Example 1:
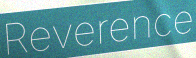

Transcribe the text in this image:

Reverence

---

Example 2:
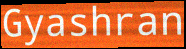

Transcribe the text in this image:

Gyashran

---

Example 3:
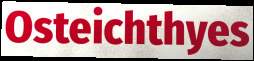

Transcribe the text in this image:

Osteichthyes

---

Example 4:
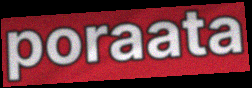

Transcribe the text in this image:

poraata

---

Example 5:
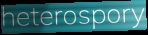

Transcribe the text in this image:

heterospory